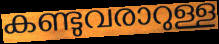
കണ്ടുവരാറുള്ള